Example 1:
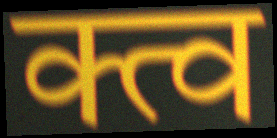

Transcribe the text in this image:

क्त्व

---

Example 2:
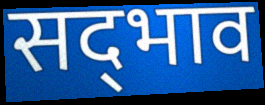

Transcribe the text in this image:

सद्भाव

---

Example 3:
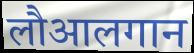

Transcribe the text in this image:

लौआलगान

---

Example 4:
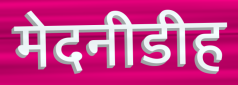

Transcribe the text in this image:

मेदनीडीह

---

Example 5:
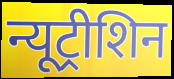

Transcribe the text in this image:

न्यूट्रीशिन